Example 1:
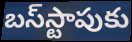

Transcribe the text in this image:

బస్‌స్టాపుకు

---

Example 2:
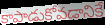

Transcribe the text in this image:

కాపాడుకోవడానికే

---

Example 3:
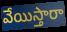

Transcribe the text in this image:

వేయిస్తారా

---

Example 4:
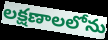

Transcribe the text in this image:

లక్షణాలలోను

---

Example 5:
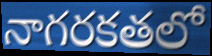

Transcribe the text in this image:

నాగరకతలో